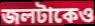
জলটাকেও